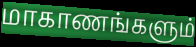
மாகாணங்களும்